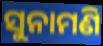
ସୁନାମଣି